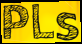
PLs